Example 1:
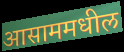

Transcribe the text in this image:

आसाममधील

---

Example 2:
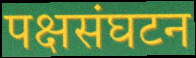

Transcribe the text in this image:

पक्षसंघटन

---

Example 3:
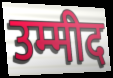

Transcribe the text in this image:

उम्मीद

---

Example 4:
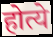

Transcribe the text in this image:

होत्ये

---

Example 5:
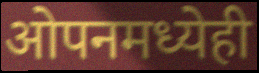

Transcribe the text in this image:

ओपनमध्येही